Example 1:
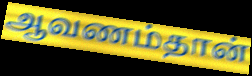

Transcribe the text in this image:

ஆவணம்தான்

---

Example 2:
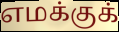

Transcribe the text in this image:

எமக்குக்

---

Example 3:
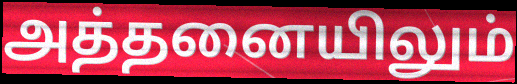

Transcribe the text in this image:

அத்தனையிலும்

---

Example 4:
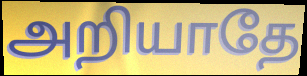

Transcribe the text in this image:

அறியாதே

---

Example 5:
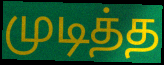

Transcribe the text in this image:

முடித்த